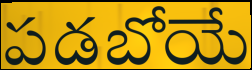
పడబోయే